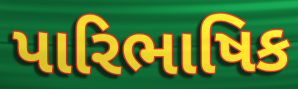
પારિભાષિક